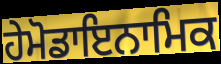
ਹੇਮੋਡਾਇਨਾਮਿਕ